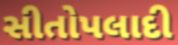
સીતોપલાદી